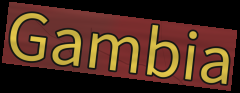
Gambia